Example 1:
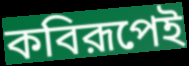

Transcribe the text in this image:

কবিরূপেই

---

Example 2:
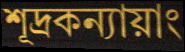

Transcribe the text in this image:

শূদ্রকন্যায়াং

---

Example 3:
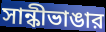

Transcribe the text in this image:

সান্কীভাঙার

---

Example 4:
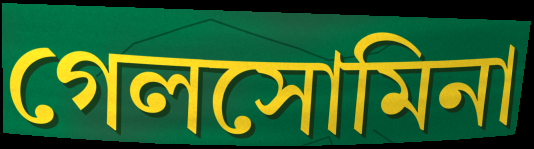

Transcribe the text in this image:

গেলসোমিনা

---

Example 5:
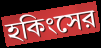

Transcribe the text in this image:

হকিংসের